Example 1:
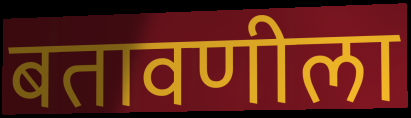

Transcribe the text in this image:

बतावणीला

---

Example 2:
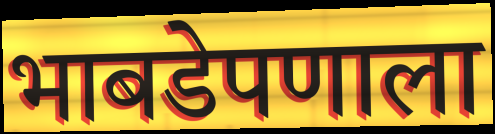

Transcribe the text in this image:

भाबडेपणाला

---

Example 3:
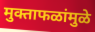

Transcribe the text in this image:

मुक्ताफळांमुळे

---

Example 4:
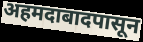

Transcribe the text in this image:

अहमदाबादपासून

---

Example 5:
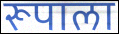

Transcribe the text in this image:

रूपाला